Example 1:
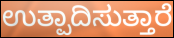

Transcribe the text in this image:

ಉತ್ಪಾದಿಸುತ್ತಾರೆ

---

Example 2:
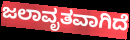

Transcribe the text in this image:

ಜಲಾವೃತವಾಗಿದೆ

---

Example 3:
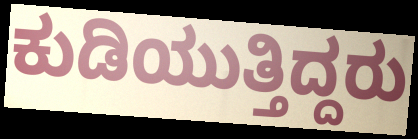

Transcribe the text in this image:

ಕುಡಿಯುತ್ತಿದ್ದರು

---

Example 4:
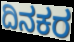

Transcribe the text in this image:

ದಿನಕರ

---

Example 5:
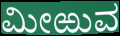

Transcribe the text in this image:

ಮೀಱುವ